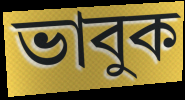
ভাবুক